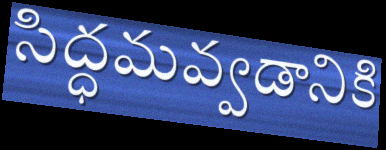
సిద్ధమవ్వడానికి